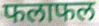
फलाफल